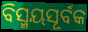
ବିସ୍ମୟସୂର୍ବକ